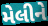
મેલીને